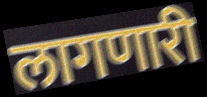
लागणारी